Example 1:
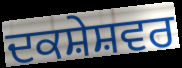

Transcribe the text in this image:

ਦਕਸ਼ੇਸ਼ਵਰ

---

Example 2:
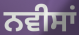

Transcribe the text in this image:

ਨਵੀਸਾਂ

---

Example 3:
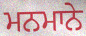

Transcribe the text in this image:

ਮਨਮਾਨੇ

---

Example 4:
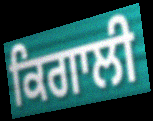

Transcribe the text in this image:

ਕਿਗਾਲੀ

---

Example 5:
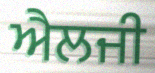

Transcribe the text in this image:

ਐਲਜੀ